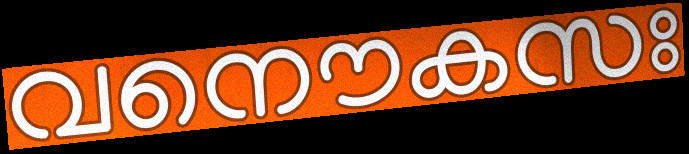
വനൌകസഃ